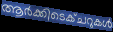
ആർക്കിടെക്ചറുകൾ